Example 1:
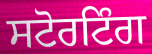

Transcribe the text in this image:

ਸਟੋਰਟਿੰਗ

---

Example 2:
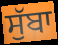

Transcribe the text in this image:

ਸੁੱਬਾ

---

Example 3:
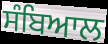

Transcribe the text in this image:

ਸੰਬਿਆਲ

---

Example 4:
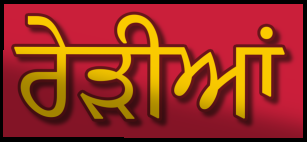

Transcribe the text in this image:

ਰੇੜੀਆਂ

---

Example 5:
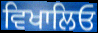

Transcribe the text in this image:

ਵਿਖਾਲਿਓ